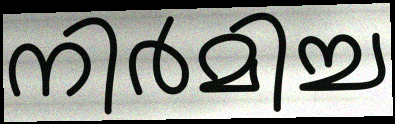
നിർമിച്ച